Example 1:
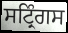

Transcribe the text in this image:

ਸਟ੍ਰਿੰਗਸ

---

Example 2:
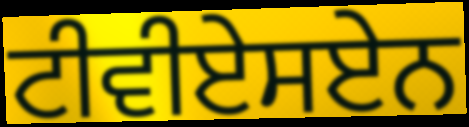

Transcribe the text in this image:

ਟੀਵੀਏਸਏਨ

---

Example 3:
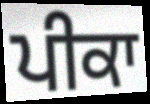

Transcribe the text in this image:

ਪੀਕਾ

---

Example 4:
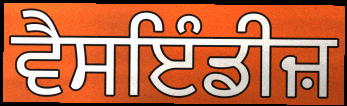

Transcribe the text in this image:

ਵੈਸਇੰਡੀਜ਼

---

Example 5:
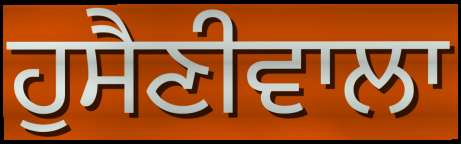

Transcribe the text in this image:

ਹੁਸੈਣੀਵਾਲਾ